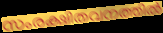
സംരക്ഷിതവനത്തിൽ